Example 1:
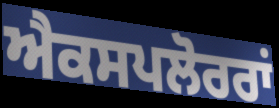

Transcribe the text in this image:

ਐਕਸਪਲੋਰਰਾਂ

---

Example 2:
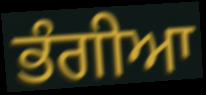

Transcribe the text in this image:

ਭੰਗੀਆ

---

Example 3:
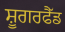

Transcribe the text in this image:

ਸ਼ੂਗਰਫੈੱਡ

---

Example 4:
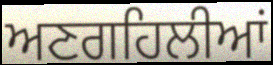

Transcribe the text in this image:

ਅਣਗਹਿਲੀਆਂ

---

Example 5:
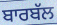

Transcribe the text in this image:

ਬਾਰਬੱਲ